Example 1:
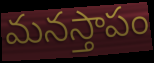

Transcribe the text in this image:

మనస్తాపం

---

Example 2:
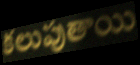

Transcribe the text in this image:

కలుపుతాయి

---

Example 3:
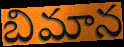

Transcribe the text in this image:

బిమాన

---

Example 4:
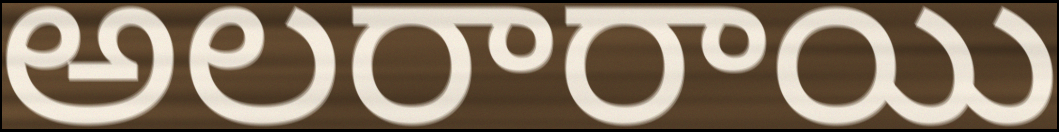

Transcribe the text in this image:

అలరారాయి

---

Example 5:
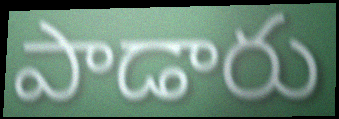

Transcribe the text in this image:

పాడారు